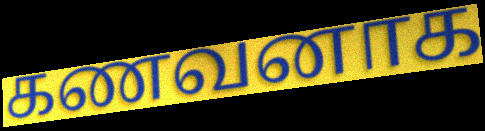
கணவனாக